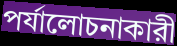
পর্যালোচনাকারী